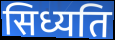
सिध्यति